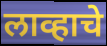
लाव्हाचे